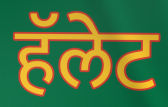
हॅलेट